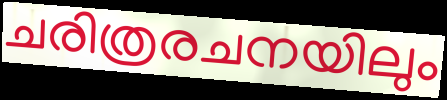
ചരിത്രരചനയിലും